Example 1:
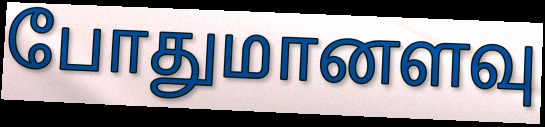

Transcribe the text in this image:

போதுமானளவு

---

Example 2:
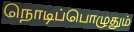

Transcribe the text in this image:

நொடிப்பொழுதும்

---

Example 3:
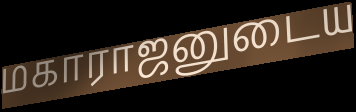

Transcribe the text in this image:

மகாராஜனுடைய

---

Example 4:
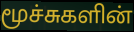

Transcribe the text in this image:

மூச்சுகளின்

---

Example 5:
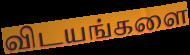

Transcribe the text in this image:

விடயங்களை